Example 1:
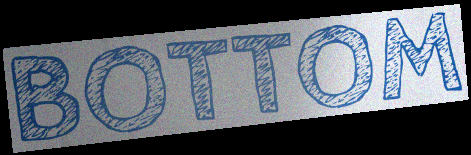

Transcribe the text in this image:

BOTTOM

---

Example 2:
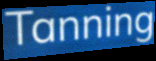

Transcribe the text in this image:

Tanning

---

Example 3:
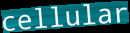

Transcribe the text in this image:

cellular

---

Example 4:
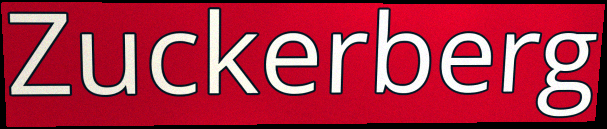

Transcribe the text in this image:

Zuckerberg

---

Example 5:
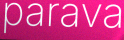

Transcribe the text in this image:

parava